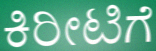
ಕಿರೀಟಿಗೆ